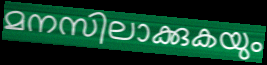
മനസിലാക്കുകയും